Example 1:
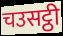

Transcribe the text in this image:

चउसट्ठी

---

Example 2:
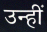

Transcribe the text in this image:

उन्हीं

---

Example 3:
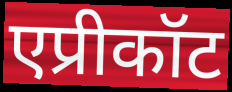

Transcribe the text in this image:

एप्रीकॉट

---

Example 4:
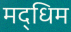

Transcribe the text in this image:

मद्धिम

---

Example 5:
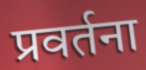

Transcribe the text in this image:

प्रवर्तना